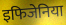
इफिजेनिया